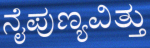
ನೈಪುಣ್ಯವಿತ್ತು